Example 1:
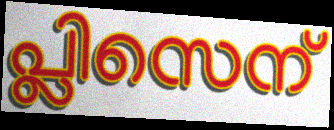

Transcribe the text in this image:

പ്ലിസെന്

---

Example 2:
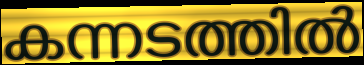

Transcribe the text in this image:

കന്നടത്തിൽ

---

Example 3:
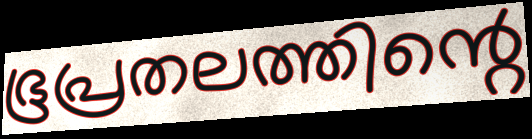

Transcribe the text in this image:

ഭൂപ്രതലത്തിന്റെ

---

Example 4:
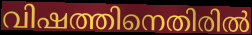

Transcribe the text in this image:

വിഷത്തിനെതിരിൽ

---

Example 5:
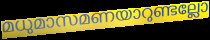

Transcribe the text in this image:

മധുമാസമണയാറുണ്ടല്ലോ